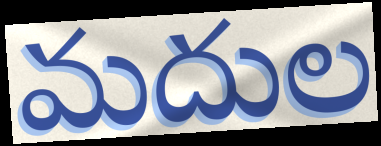
మదుల